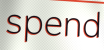
spend